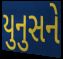
યુનુસને